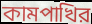
কামপাখির